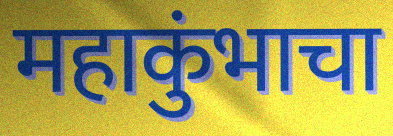
महाकुंभाचा